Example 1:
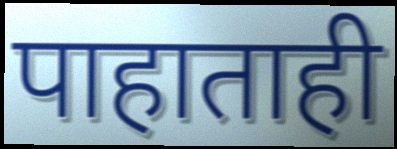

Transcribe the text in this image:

पाहाताही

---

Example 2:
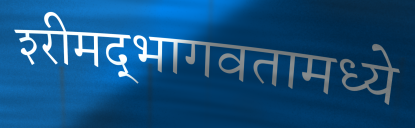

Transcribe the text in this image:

श्रीमद्‌भागवतामध्ये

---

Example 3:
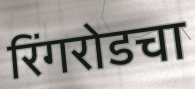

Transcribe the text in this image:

रिंगरोडचा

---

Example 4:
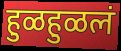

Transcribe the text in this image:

हुळहुळलं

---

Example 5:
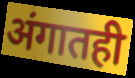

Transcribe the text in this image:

अंगातही